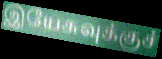
இயேசுவுக்குச்